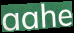
aahe